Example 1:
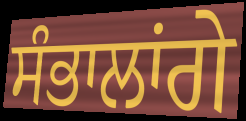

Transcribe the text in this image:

ਸੰਭਾਲਾਂਗੇ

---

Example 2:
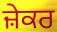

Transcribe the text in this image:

ਜ਼ੇਕਰ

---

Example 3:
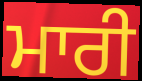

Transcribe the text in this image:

ਮਾਰੀ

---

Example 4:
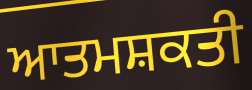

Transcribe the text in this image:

ਆਤਮਸ਼ਕਤੀ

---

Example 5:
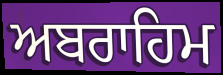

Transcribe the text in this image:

ਅਬਰਾਹਿਮ